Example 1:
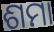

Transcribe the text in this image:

ଶମା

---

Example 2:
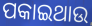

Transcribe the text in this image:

ପକାଇଥାଉ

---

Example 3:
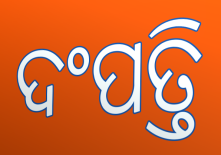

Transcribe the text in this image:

ଦଂପତ୍ତି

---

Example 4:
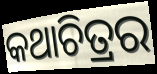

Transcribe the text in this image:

କଥାଚିତ୍ରର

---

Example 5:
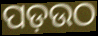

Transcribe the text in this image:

ପଡ଼ଉଠ